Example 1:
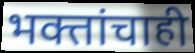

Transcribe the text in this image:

भक्तांचाही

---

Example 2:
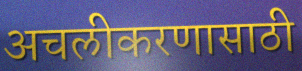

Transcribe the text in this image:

अचलीकरणासाठी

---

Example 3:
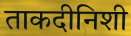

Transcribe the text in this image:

ताकदीनिशी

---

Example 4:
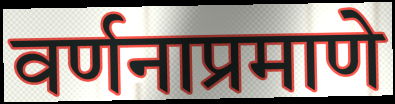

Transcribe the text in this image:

वर्णनाप्रमाणे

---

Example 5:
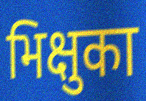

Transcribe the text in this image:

भिक्षुका